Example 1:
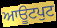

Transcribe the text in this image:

ਆਊਟਪੁਟ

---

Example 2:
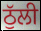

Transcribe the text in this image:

ਠੁੱਲੀ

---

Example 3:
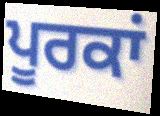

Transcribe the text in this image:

ਪੂਰਕਾਂ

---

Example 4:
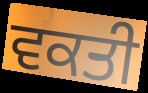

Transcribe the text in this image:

ਵਕਤੀ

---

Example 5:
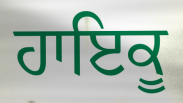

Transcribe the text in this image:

ਹਾਇਕੂ